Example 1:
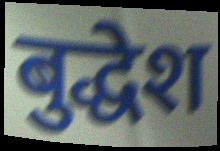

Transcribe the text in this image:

बुद्धेश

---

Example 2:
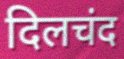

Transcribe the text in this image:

दिलचंद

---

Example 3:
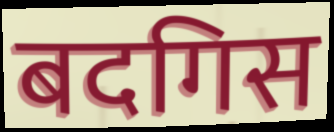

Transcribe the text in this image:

बदगिस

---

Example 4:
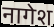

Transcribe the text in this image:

नागेश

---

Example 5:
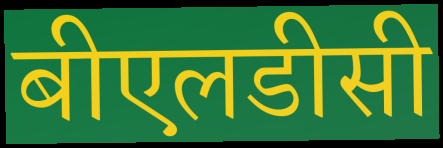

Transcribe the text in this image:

बीएलडीसी